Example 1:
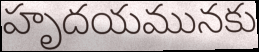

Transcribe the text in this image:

హృదయమునకు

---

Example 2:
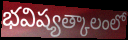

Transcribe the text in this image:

భవిష్యత్కాలంలో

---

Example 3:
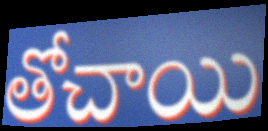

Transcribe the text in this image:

తోచాయి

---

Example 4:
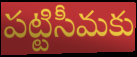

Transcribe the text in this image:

పట్టిసీమకు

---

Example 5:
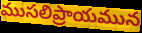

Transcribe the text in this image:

ముసలిప్రాయమున